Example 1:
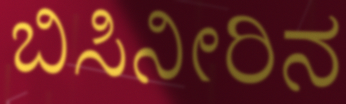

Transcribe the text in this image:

ಬಿಸಿನೀರಿನ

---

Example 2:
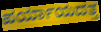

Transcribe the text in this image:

ಪರ್ಯಾಯದತ್ತ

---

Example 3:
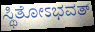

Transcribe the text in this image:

ಸ್ಥಿತೋಽಭವತ್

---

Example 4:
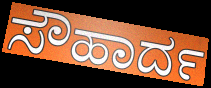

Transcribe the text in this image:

ಸೌಹಾರ್ದ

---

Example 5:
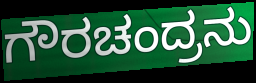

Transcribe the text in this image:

ಗೌರಚಂದ್ರನು